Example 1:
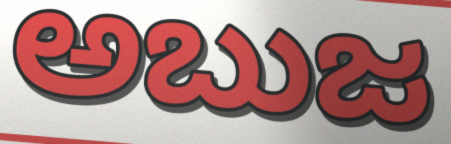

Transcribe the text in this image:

ಅಬುಜ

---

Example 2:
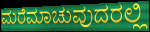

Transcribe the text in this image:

ಮರೆಮಾಚುವುದರಲ್ಲಿ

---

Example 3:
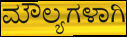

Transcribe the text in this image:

ಮೌಲ್ಯಗಳಾಗಿ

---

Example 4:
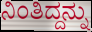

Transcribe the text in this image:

ನಿಂತಿದ್ದನ್ನು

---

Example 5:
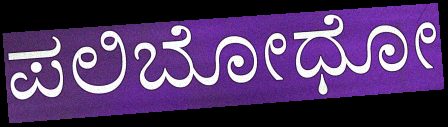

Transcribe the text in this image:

ಪಲಿಬೋಧೋ